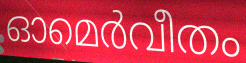
ഓമെർവീതം